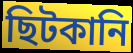
ছিটকানি